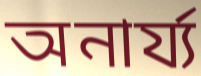
অনার্য্য